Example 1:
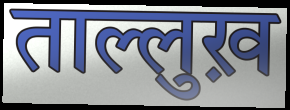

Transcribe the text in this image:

ताल्लुख़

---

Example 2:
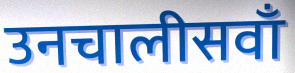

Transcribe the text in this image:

उनचालीसवाँ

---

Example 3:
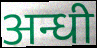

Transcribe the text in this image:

अन्धी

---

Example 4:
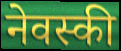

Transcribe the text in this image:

नेवस्की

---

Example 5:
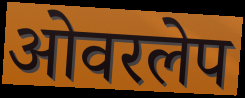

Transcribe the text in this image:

ओवरलेप